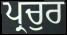
ਪ੍ਰਚੁਰ